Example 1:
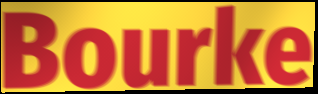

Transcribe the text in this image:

Bourke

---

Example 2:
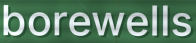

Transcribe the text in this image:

borewells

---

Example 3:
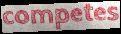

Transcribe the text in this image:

competes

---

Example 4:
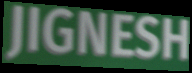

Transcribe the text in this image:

JIGNESH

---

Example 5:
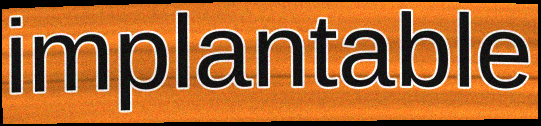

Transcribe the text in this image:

implantable